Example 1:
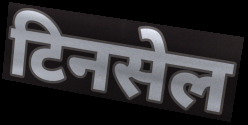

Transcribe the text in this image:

टिनसेल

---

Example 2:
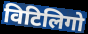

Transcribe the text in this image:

विटिलिगो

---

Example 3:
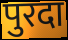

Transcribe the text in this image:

पुरदा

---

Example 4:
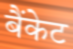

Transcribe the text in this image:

बैंकेट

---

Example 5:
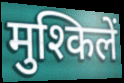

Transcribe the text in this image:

मुश्किलें